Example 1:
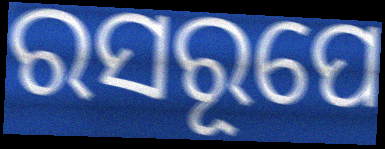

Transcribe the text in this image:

ରସରୂପେ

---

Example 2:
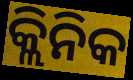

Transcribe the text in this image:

କ୍ଲିନିକ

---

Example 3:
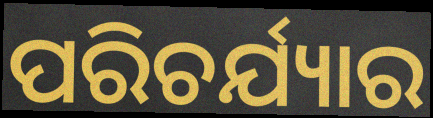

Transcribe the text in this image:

ପରିଚର୍ଯ୍ୟାର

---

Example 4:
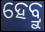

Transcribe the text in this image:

ହେବ୍ରୁ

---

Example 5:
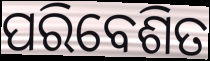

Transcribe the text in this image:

ପରିବେଶିତ